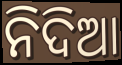
ନିଦିଆ